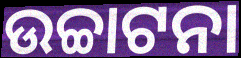
ଉଚ୍ଚାଟନା